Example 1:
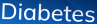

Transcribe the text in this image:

Diabetes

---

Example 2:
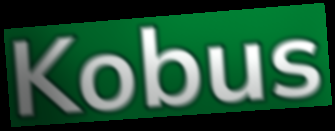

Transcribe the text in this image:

Kobus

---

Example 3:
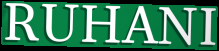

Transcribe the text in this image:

RUHANI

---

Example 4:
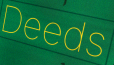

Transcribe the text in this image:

Deeds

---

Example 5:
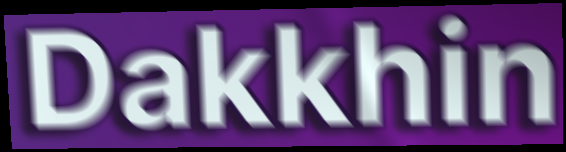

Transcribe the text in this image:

Dakkhin